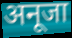
अनूजा